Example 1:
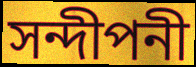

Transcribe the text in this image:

সন্দীপনী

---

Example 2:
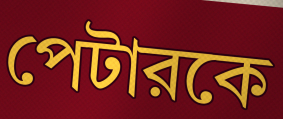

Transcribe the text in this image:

পেটারকে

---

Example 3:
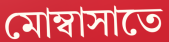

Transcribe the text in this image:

মোম্বাসাতে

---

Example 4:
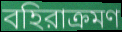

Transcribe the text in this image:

বহিরাক্রমণ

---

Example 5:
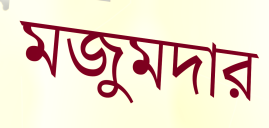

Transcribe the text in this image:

মজুমদার